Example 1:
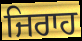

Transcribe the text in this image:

ਜਿਰਾਹ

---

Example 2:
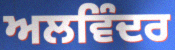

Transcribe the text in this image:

ਅਲਵਿੰਦਰ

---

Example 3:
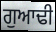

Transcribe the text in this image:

ਗੁਆਢੀ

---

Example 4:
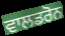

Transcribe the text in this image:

ਵਾਲਡਰੋਨ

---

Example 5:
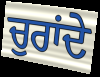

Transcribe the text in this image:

ਚੁਰਾਂਦੇ